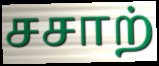
சசாற்